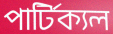
পার্টিক্যল